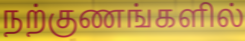
நற்குணங்களில்